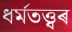
ধৰ্মতত্ত্বৰ